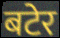
बटेर